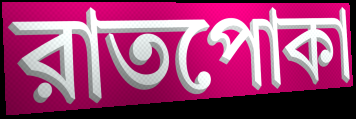
রাতপোকা